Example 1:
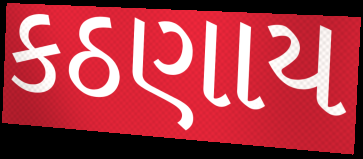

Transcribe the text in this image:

કઠણાય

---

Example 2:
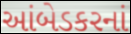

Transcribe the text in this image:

આંબેડકરનાં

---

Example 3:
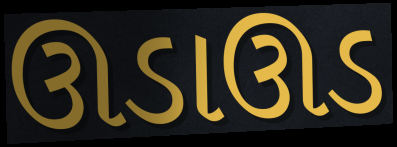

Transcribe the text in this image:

ઊડાઊડ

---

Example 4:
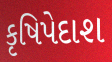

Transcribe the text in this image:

કૃષિપેદાશ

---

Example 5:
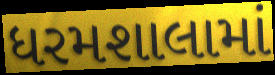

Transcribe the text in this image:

ધરમશાલામાં